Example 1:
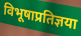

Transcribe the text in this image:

विभूषाप्रतिज्ञया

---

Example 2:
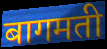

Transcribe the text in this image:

बागमती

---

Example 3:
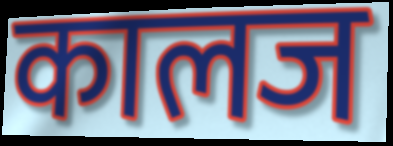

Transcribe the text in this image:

कालज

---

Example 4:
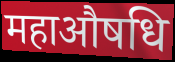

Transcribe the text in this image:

महाऔषधि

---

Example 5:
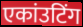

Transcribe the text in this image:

एकांउटिंग